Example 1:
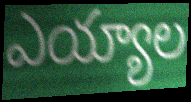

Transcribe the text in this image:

ఎయ్యాల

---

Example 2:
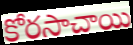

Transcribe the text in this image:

కోరసాచాయి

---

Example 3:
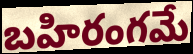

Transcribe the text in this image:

బహిరంగమే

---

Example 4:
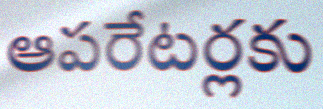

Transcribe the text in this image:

ఆపరేటర్లకు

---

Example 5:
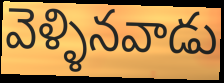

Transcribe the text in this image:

వెళ్ళినవాడు